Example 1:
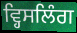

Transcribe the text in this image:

ਵ੍ਹਿਸਲਿੰਗ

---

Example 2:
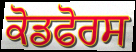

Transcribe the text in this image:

ਕੋਡਫੋਰਸ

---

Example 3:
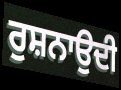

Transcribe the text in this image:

ਰੁਸ਼ਨਾਉਦੀ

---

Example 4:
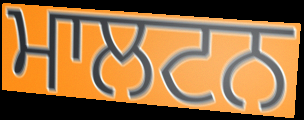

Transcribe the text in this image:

ਮਾਲਟਨ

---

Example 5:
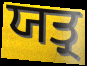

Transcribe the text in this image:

ਯਤ੍ਰ